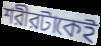
শরীরটাকেই